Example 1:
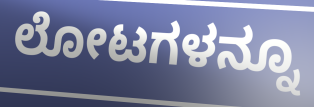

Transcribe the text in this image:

ಲೋಟಗಳನ್ನೂ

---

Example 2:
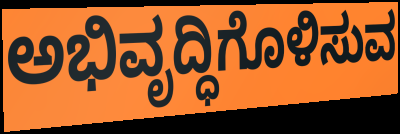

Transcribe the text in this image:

ಅಭಿವೃದ್ಧಿಗೊಳಿಸುವ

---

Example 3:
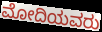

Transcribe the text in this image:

ಮೋದಿಯವರು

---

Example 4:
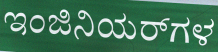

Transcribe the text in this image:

ಇಂಜಿನಿಯರ್‌ಗಳ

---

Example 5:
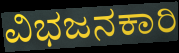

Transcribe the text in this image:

ವಿಭಜನಕಾರಿ